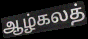
ஆழ்கலத்